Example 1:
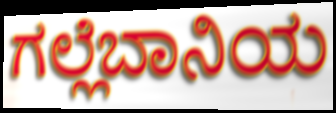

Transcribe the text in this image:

ಗಲ್ಲೆಬಾನಿಯ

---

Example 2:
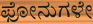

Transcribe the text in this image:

ಫೋನುಗಳೇ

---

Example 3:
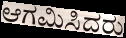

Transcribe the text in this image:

ಆಗಮಿಸಿದರು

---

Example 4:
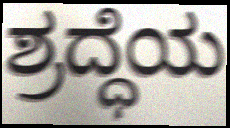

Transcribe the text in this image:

ಶ್ರದ್ಧೆಯ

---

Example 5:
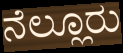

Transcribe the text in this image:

ನೆಲ್ಲೂರು